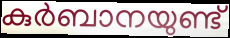
കുർബാനയുണ്ട്